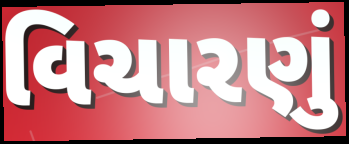
વિચારણું